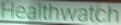
Healthwatch